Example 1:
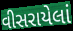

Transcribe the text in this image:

વીસરાયેલાં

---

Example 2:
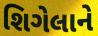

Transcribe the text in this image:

શિગેલાને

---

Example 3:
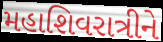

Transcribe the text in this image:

મહાશિવરાત્રીને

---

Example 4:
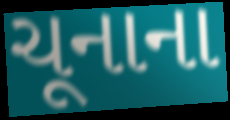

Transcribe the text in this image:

ચૂનાના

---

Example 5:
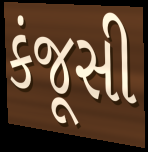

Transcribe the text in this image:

કંજૂસી